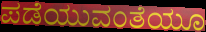
ಪಡೆಯುವಂತೆಯೂ